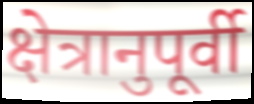
क्षेत्रानुपूर्वी